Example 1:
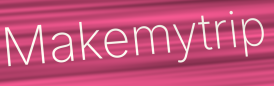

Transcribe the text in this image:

Makemytrip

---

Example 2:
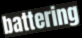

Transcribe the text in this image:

battering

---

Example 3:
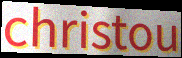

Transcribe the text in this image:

christou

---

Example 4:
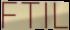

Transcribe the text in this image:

FTIL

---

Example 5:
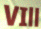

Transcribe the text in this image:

VIll